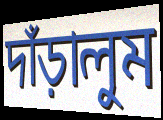
দাঁড়ালুম